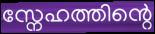
സ്നേഹത്തിന്റെ